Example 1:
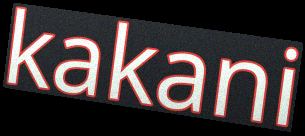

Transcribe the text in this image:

kakani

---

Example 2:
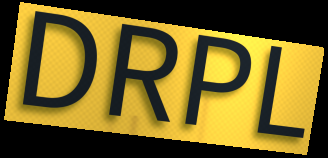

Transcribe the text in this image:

DRPL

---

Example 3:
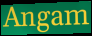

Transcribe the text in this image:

Angam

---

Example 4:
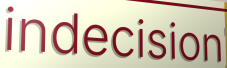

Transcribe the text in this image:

indecision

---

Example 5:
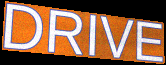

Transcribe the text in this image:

DRIVE